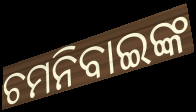
ଚମନିବାଇଙ୍କ